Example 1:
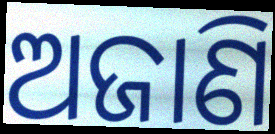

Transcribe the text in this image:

ଅଜାଣି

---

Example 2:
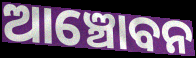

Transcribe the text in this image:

ଆଞ୍ଚୋବନ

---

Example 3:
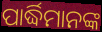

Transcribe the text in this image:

ପାର୍ଦ୍ଧିମାନଙ୍କ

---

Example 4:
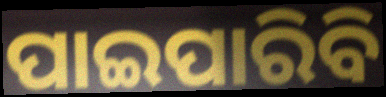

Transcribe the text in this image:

ପାଇପାରିବି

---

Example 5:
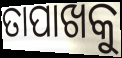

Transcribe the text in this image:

ତାପାଖକୁ